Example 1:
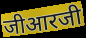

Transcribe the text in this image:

जीआरजी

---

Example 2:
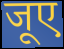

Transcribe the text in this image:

जूए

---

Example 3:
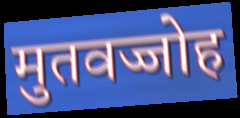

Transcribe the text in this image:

मुतवज्जोह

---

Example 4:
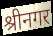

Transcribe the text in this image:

श्रीनगर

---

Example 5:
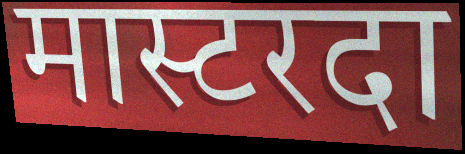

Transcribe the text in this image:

मास्टरदा